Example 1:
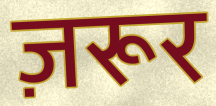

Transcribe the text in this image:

ज़रूर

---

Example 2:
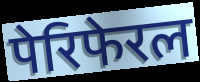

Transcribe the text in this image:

पेरिफेरल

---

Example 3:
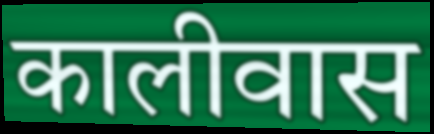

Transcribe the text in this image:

कालीवास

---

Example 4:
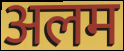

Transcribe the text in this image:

अलम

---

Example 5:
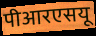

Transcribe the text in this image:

पीआरएसयू